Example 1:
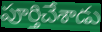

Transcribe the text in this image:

పూర్తిచేశాడు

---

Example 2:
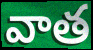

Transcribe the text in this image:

వాత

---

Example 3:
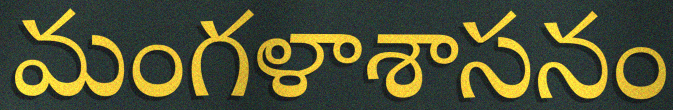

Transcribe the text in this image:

మంగళాశాసనం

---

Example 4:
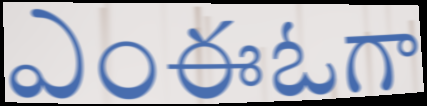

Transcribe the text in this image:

ఎంఈఓగా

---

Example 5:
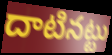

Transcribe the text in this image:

దాటినట్టు